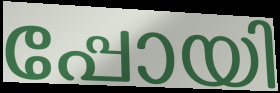
പ്പോയി